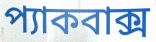
প্যাকবাক্স